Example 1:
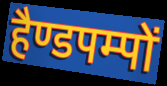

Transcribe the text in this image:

हैण्डपम्पों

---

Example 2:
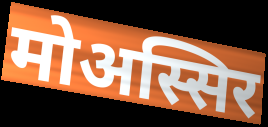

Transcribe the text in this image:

मोअस्सिर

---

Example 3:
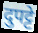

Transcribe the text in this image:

दुपट्टे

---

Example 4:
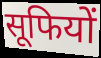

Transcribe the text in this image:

सूफियों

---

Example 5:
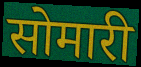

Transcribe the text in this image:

सोमारी